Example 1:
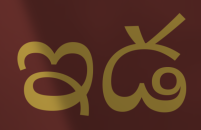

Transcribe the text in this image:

ఇడ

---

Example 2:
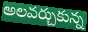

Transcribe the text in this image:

అలవర్చుకున్న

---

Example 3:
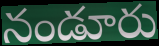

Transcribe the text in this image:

నండూరు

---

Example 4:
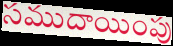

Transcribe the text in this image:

సముదాయింపు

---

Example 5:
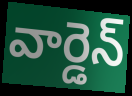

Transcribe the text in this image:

వార్డెన్